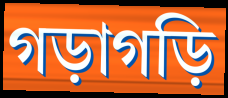
গড়াগড়ি